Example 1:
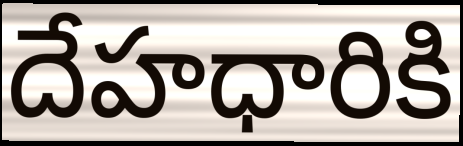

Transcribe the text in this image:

దేహధారికి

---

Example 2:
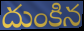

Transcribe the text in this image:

దుంకిన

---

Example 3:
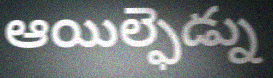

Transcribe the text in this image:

ఆయిల్ఫెడ్ను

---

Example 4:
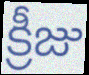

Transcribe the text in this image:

క్రీజు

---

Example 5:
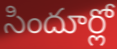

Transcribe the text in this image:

సిందూర్లో